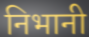
निभानी